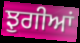
ਝੁਗੀਆਂ